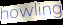
howling